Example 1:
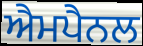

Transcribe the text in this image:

ਐਮਪੈਨਲ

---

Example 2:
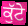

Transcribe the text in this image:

ਕੁੱਟੇ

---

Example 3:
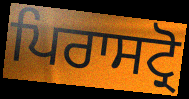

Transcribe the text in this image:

ਪਿਰਾਸਟ੍ਰੋ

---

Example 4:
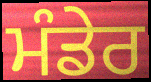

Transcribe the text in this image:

ਮੰਡੇਰ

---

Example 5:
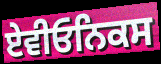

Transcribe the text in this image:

ਏਵੀਓਨਿਕਸ